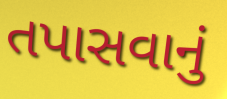
તપાસવાનું